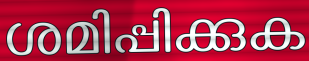
ശമിപ്പിക്കുക